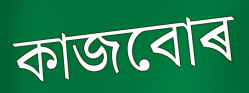
কাজবোৰ